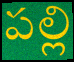
పల్లి